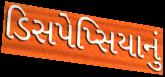
ડિસપેપ્સિયાનું